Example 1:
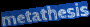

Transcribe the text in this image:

metathesis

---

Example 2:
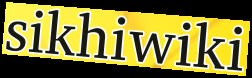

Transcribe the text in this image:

sikhiwiki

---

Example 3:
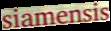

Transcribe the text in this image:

siamensis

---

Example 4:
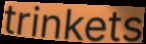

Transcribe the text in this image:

trinkets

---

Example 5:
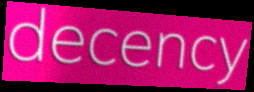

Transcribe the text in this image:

decency